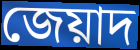
জেয়াদ